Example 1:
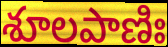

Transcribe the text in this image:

శూలపాణిః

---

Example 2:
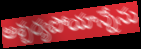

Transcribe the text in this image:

ఆశ్చర్యపోయాన్నేను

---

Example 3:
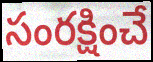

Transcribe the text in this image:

సంరక్షించే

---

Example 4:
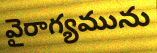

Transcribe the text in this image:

వైరాగ్యమును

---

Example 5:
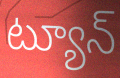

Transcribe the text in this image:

ట్యూన్